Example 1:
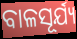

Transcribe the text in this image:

ବାଳସୂର୍ଯ୍ୟ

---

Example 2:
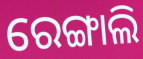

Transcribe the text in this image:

ରେଙ୍ଗାଲି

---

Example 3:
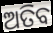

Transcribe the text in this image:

ଅତିବ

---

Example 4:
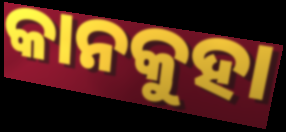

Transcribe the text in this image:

କାନକୁହା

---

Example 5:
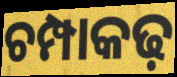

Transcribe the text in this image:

ଚମ୍ପାକଢ଼